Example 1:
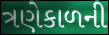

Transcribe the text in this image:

ત્રણેકાળની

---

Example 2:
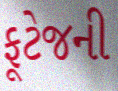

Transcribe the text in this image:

ફૂટેજની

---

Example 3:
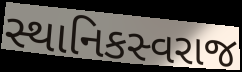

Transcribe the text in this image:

સ્થાનિકસ્વરાજ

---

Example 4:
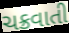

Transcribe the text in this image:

ચક્રવાતી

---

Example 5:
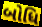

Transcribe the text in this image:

બોધિ